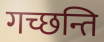
गच्छन्ति